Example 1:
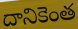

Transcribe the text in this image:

దానికెంత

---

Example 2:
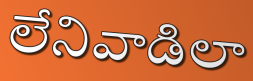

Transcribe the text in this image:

లేనివాడిలా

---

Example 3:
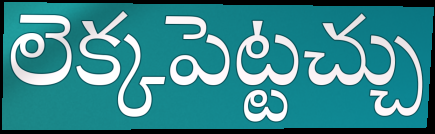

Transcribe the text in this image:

లెక్కపెట్టచ్చు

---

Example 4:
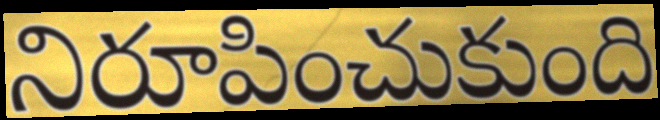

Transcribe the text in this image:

నిరూపించుకుంది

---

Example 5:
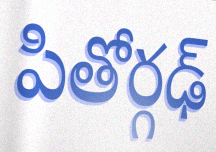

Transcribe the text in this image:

పితోర్గఢ్